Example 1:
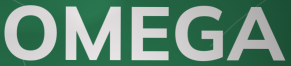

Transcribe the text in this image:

OMEGA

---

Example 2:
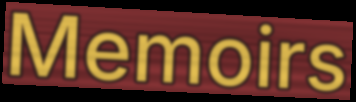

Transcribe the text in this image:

Memoirs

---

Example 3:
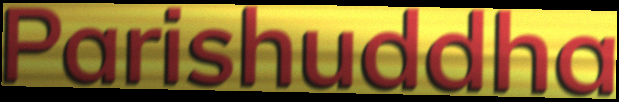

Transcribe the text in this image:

Parishuddha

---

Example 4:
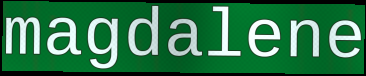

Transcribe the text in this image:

magdalene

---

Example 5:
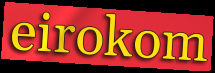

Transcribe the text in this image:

eirokom